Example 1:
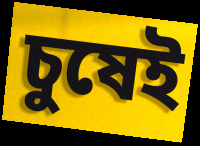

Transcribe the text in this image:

চুষেই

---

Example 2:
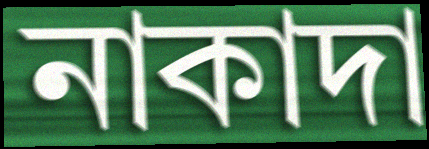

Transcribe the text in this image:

নাকাদা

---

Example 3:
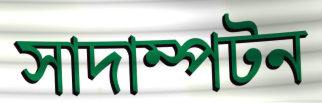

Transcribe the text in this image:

সাদাম্পটন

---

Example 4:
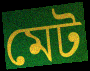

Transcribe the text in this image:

মেট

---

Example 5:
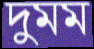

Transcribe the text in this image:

দুমম